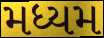
મધ્યમ